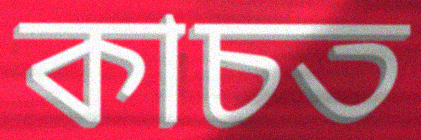
কাচত